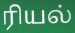
ரியல்